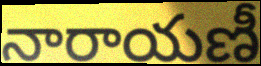
నారాయణీ